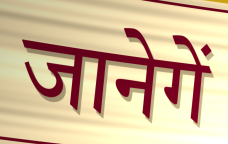
जानेगें